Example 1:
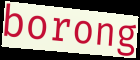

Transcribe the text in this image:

borong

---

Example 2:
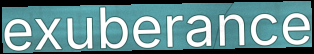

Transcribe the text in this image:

exuberance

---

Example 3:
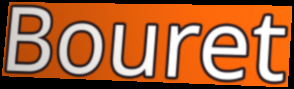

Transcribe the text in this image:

Bouret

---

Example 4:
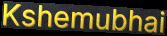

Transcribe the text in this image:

Kshemubhai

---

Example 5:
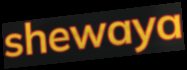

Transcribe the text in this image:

shewaya